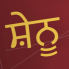
ਸ਼ੇਨੂ